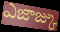
ఎజాజ్కు